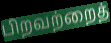
பிறவற்றைத்